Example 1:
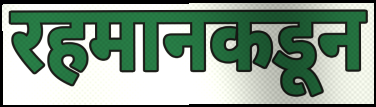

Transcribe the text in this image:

रहमानकडून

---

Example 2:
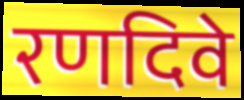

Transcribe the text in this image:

रणदिवे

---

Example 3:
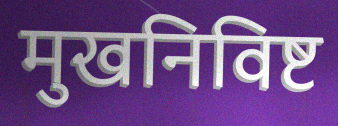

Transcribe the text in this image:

मुखनिविष्ट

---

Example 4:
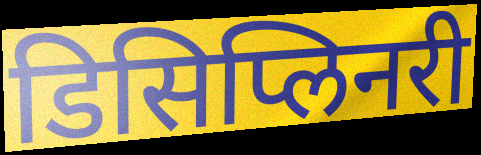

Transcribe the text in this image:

डिसिप्लिनरी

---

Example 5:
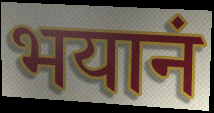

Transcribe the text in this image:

भयानं